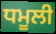
ਧਮੂਲੀ